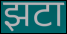
झटा